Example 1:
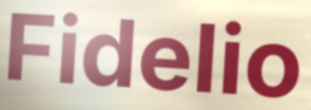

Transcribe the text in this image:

Fidelio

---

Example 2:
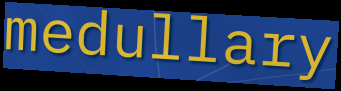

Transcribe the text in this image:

medullary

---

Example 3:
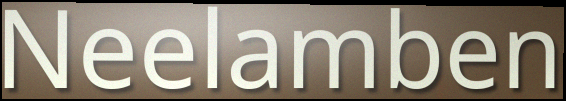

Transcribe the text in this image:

Neelamben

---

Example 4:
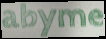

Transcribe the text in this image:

abyme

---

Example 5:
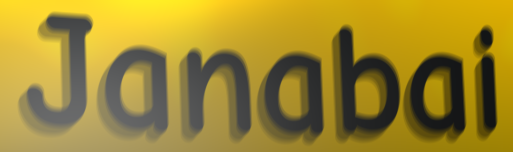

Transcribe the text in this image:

Janabai